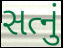
સત્નું